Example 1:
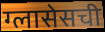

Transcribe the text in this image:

ग्लासेसची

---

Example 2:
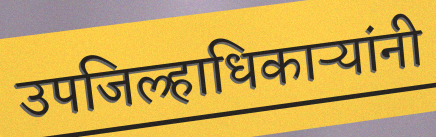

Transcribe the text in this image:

उपजिल्हाधिकाऱ्यांनी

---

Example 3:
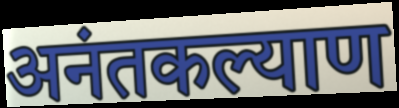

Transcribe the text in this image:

अनंतकल्याण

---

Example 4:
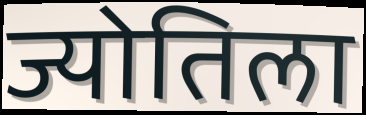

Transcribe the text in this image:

ज्योतिला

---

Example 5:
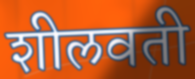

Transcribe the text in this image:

शीलवती